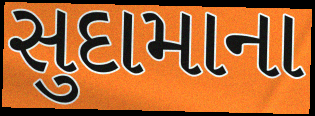
સુદામાના